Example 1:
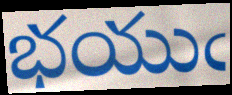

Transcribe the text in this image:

భయుఁ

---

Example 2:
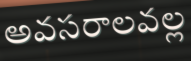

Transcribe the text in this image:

అవసరాలవల్ల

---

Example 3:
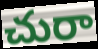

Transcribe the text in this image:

చురా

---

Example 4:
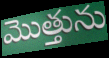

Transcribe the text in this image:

మొత్తును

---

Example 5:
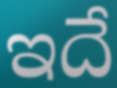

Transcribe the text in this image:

ఇదే